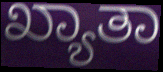
ಖ್ಯಾತಾ